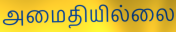
அமைதியில்லை